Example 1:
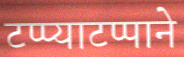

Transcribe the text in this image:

टप्प्याटप्पाने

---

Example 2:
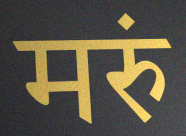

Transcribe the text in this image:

मरुं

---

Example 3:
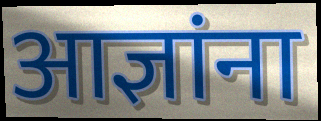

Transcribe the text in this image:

आज्ञांना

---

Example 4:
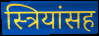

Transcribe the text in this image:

स्त्रियांसह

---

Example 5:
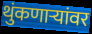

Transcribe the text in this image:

थुंकणाऱ्यांवर